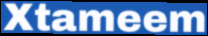
Xtameem